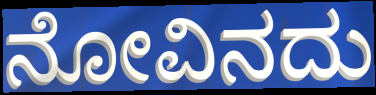
ನೋವಿನದು